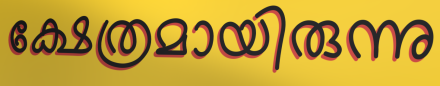
ക്ഷേത്രമായിരുന്നു